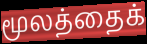
மூலத்தைக்